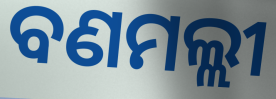
ବଣମଲ୍ଲୀ